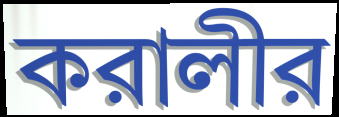
করালীর